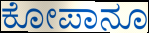
ಕೋಪಾನೂ